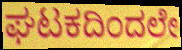
ಘಟಕದಿಂದಲೇ